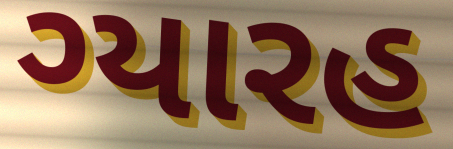
ગ્યારહ